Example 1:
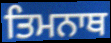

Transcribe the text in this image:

ਤਿਮਨਾਥ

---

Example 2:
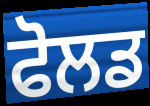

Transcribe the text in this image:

ਫੋਲਡ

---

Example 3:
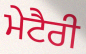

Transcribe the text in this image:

ਮੇਟੈਰੀ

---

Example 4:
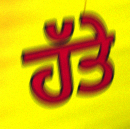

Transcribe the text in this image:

ਹੱਤੇ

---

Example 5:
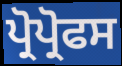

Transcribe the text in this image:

ਪ੍ਰੋਪ੍ਰੋਫਸ